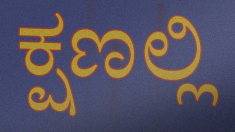
ಕ್ಷಣಲ್ಲಿ